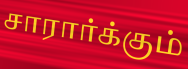
சாரார்க்கும்